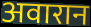
अवारान